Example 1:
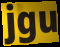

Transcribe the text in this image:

jgu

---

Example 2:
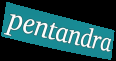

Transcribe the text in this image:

pentandra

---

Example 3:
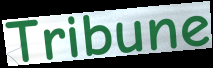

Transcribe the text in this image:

Tribune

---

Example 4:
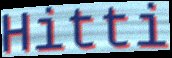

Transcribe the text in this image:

Hitti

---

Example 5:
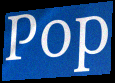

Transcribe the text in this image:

Pop